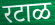
रटाळ